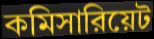
কমিসারিয়েট